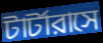
টার্টারাসে